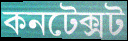
কনটেক্সট